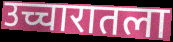
उच्चारातला